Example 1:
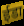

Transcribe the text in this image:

ईडा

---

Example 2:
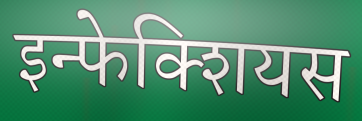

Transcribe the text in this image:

इन्फेक्शियस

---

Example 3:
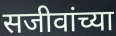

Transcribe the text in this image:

सजीवांच्या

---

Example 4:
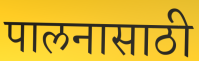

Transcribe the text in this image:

पालनासाठी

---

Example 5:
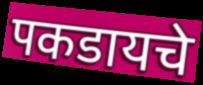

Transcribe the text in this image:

पकडायचे